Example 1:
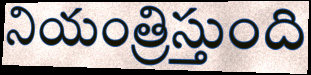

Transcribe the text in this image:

నియంత్రిస్తుంది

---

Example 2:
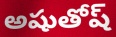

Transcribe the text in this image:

అషుతోష్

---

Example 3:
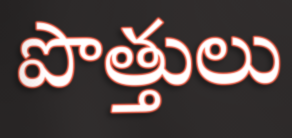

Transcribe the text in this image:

పొత్తులు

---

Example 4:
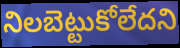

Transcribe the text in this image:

నిలబెట్టుకోలేదని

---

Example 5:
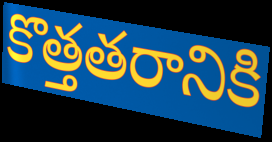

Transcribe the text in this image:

కొత్తతరానికి